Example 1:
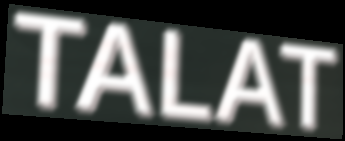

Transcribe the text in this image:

TALAT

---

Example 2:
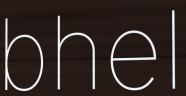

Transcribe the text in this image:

bhel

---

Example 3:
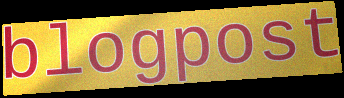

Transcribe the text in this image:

blogpost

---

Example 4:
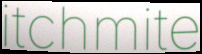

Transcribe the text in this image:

itchmite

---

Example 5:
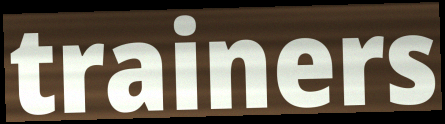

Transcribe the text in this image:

trainers